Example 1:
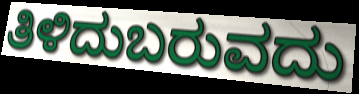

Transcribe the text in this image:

ತಿಳಿದುಬರುವದು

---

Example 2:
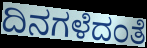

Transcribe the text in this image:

ದಿನಗಳೆದಂತೆ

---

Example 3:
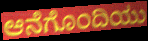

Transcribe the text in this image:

ಆನೆಗೊಂದಿಯು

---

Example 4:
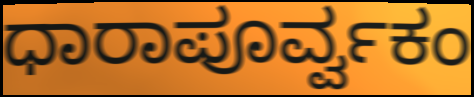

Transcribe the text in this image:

ಧಾರಾಪೂರ್ವ್ವಕಂ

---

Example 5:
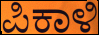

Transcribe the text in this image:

ಪಿಕಾಳಿ